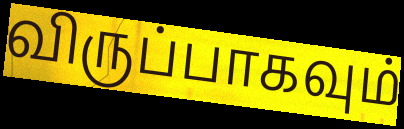
விருப்பாகவும்